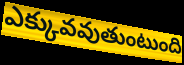
ఎక్కువవుతుంటుంది